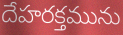
దేహరక్తమును